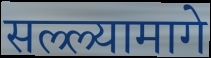
सल्ल्यामागे